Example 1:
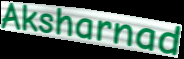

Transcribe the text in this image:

Aksharnad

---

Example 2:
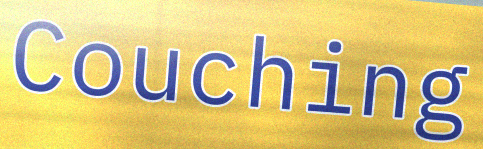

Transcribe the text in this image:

Couching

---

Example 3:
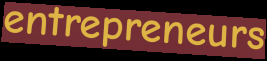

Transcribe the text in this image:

entrepreneurs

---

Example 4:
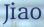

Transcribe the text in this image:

Jiao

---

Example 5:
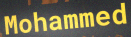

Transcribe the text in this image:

Mohammed